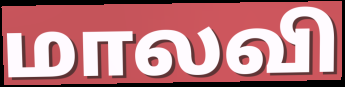
மாலவி